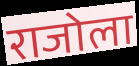
राजोला